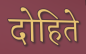
दोहिते